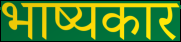
भाष्यकार